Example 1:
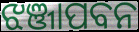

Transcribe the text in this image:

ଝଞ୍ଜାପବନ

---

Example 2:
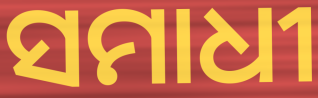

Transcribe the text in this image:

ସମାଧୀ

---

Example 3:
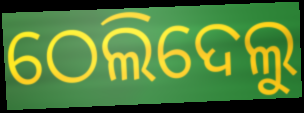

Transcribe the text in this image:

ଠେଲିଦେଲୁ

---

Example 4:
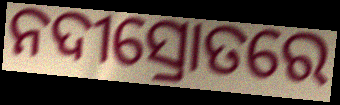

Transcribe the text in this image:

ନଦୀସ୍ରୋତରେ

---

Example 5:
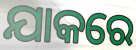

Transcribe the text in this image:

ଯାକରେ